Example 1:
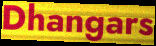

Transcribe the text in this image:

Dhangars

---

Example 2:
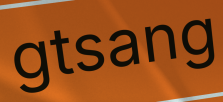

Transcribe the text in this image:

gtsang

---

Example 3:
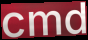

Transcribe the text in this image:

cmd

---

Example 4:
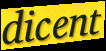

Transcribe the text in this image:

dicent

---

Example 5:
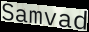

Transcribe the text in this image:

Samvad